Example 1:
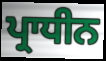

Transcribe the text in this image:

ਪ੍ਰਾਧੀਨ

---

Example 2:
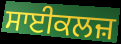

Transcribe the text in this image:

ਸਾਈਕਲਜ਼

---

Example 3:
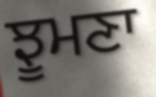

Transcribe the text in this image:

ਝੂਮਣਾ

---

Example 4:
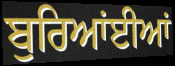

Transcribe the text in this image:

ਬੁਰਿਆਂਈਆਂ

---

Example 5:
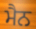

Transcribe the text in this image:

ਮੈਨ